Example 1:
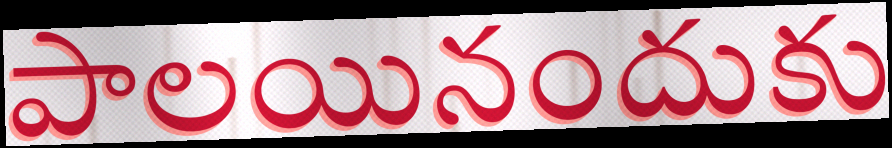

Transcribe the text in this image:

పాలయినందుకు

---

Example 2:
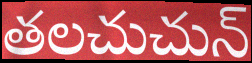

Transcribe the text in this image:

తలచుచున్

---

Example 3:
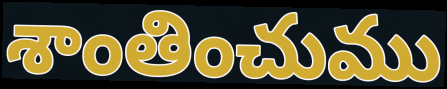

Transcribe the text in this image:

శాంతించుము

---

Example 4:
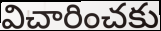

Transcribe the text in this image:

విచారించకు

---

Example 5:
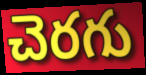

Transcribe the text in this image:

చెరగు